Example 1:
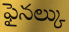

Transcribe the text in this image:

ఫైనల్కు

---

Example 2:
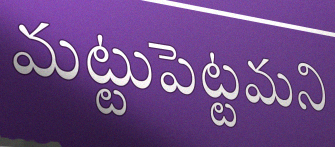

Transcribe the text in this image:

మట్టుపెట్టమని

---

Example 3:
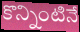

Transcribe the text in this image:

కొన్నింటినే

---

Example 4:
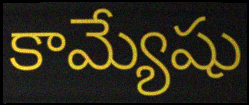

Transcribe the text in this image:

కామ్యేషు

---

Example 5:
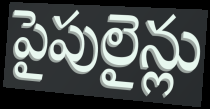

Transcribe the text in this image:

పైపులైన్లు